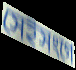
সেইসংগে